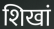
शिखां